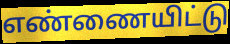
எண்ணையிட்டு